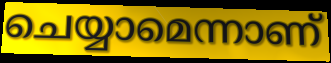
ചെയ്യാമെന്നാണ്